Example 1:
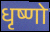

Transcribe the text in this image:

धृष्णो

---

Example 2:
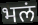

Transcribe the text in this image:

भलं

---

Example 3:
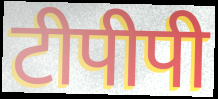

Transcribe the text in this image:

टीपीपी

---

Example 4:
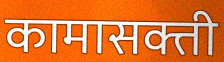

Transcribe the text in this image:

कामासक्ती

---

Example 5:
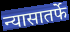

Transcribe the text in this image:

न्यासातर्फे